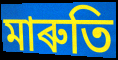
মাৰুতি